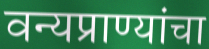
वन्यप्राण्यांचा